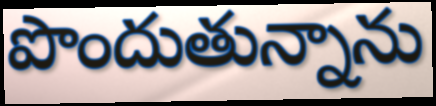
పొందుతున్నాను